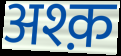
अश्क़